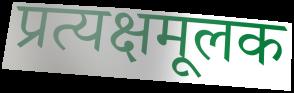
प्रत्यक्षमूलक